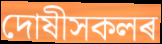
দোষীসকলৰ